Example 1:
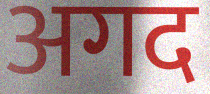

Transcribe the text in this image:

अगद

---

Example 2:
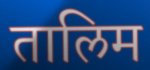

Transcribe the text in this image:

तालिम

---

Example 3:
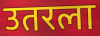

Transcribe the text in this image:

उतरला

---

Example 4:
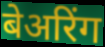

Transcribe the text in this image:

बेअरिंग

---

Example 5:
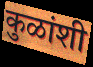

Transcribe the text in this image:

कुळांशी